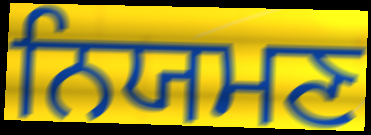
ਨਿਯਮਣ